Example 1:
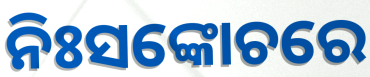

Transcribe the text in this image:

ନିଃସଙ୍କୋଚରେ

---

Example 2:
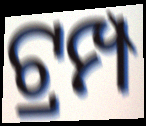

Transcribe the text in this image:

ଟ୍ରମ୍ପ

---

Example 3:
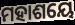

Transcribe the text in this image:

ମହାଶୟେ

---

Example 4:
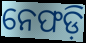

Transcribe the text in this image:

ନେଫଡ଼ି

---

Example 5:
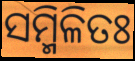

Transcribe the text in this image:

ସମ୍ମିଳିତଃ